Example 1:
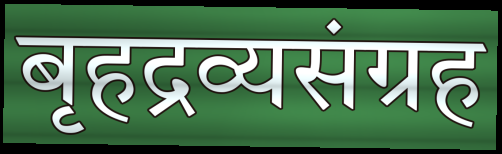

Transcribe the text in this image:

बृहद्रव्यसंग्रह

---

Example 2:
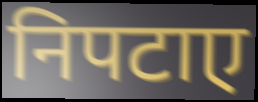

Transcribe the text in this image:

निपटाए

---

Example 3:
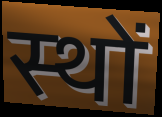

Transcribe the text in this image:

स्थों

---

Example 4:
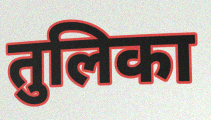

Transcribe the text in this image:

तुलिका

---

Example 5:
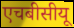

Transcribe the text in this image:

एचबीसीयू